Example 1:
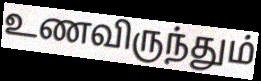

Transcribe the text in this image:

உணவிருந்தும்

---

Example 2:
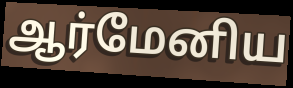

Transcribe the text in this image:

ஆர்மேனிய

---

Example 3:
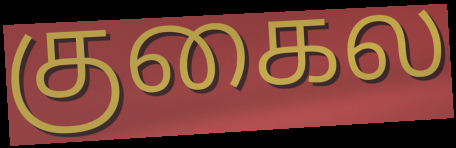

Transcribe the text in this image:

குகைல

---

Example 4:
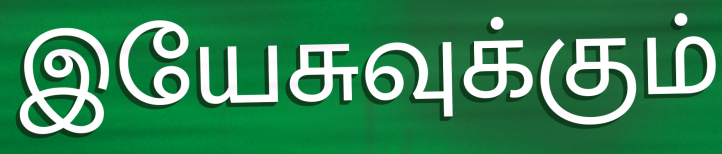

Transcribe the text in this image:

இயேசுவுக்கும்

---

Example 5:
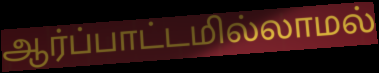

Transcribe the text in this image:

ஆர்ப்பாட்டமில்லாமல்